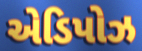
એડિપોઝ